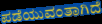
ಪಡೆಯುವಂತಾಗಿದೆ